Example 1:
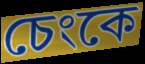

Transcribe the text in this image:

চেংকে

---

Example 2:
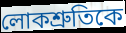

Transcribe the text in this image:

লোকশ্রুতিকে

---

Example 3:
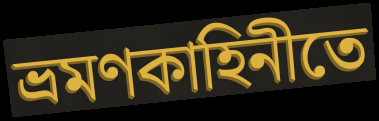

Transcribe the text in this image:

ভ্রমণকাহিনীতে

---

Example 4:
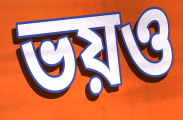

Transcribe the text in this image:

ভয়ও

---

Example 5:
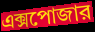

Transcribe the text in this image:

এক্সপোজার